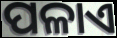
ପଳାଏ